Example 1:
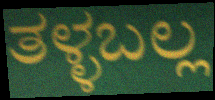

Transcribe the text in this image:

ತಳ್ಳಬಲ್ಲ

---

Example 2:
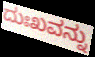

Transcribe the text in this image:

ದುಃಖವನ್ನು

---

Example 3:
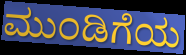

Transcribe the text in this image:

ಮುಂಡಿಗೆಯ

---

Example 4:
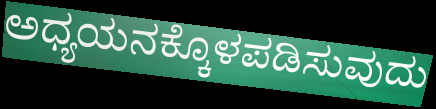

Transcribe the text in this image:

ಅಧ್ಯಯನಕ್ಕೊಳಪಡಿಸುವುದು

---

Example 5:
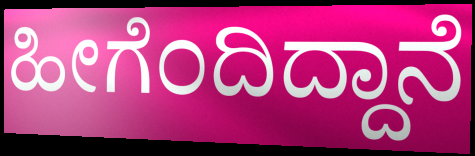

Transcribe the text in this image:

ಹೀಗೆಂದಿದ್ದಾನೆ